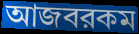
আজবরকম